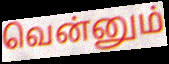
வென்னும்